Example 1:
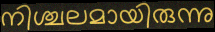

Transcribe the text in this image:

നിശ്ചലമായിരുന്നു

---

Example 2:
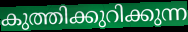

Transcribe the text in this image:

കുത്തിക്കുറിക്കുന്ന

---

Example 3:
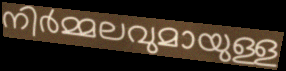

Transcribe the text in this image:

നിർമ്മലവുമായുള്ള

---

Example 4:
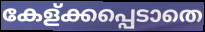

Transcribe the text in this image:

കേള്ക്കപ്പെടാതെ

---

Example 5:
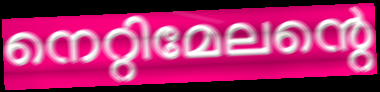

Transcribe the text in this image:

നെറ്റിമേലന്റെ